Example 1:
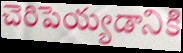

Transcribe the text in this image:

చెరిపెయ్యడానికి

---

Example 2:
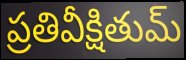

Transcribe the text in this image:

ప్రతివీక్షితుమ్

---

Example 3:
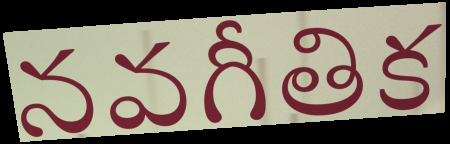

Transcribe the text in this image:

నవగీతిక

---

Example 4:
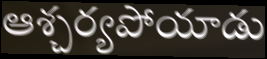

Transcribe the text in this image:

ఆశ్చర్యపోయాడు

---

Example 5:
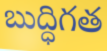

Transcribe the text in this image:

బుద్ధిగత